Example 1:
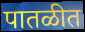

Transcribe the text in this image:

पातळीत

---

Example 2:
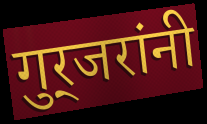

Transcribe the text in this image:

गुर्जरांनी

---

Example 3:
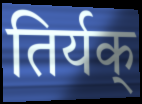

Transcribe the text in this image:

तिर्यक्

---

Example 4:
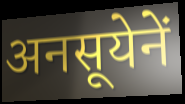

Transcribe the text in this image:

अनसूयेनें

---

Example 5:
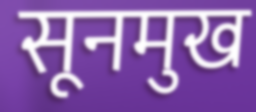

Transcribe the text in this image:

सूनमुख